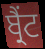
ਬ੍ਰੈਂਟ